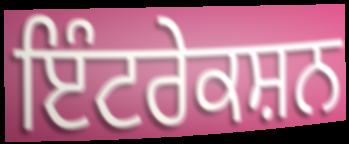
ਇੰਟਰੇਕਸ਼ਨ